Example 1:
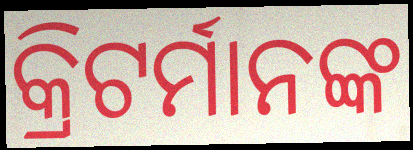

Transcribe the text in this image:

କ୍ରିଟର୍ମାନଙ୍କ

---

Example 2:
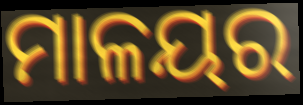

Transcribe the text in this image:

ମାଳୟର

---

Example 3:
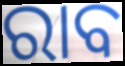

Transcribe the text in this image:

ରାବ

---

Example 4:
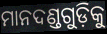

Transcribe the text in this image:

ମାନଦଣ୍ଡଗୁଡ଼ିକୁ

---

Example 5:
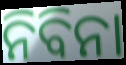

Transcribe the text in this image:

ନିବିନା